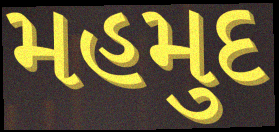
મહમુદ